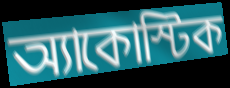
অ্যাকোস্টিক